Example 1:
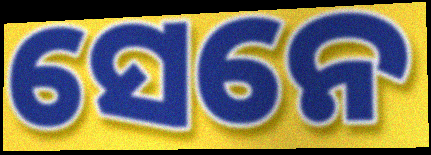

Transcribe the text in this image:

ସେନେ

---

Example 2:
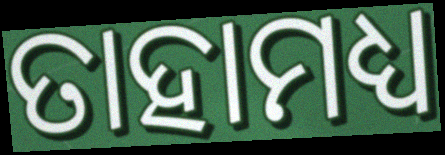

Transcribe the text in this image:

ତାହାମଧ୍ୟ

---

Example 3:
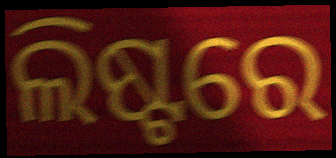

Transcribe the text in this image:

ଲିଷ୍ଟରେ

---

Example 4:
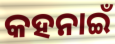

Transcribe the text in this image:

କହନାଇଁ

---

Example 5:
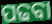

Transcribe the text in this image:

ପଢବା